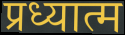
प्रध्यात्म